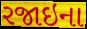
રજાઇના